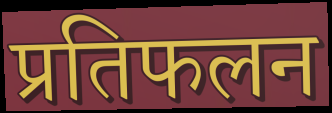
प्रतिफलन